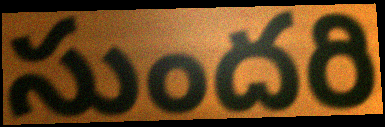
సుందరి